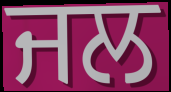
ਜਲ